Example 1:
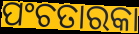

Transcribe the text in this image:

ପଂଚତାରକା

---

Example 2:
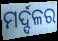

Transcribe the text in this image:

ମର୍ଦ୍ଦଳର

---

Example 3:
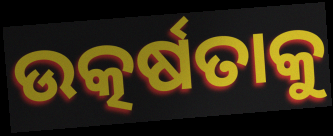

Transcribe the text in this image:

ଉତ୍କର୍ଷତାକୁ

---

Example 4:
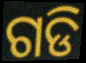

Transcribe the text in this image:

ଗଡି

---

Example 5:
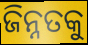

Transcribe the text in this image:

ଜିନ୍ନତକୁ